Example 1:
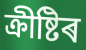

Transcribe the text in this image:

ক্ৰীষ্টিৰ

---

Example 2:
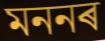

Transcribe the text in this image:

মননৰ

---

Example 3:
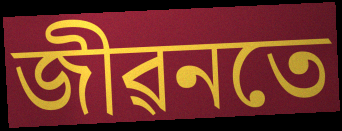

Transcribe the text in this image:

জীৱনতে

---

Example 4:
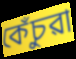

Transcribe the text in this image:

কেঁচুৱা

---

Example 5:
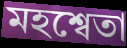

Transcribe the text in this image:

মহশ্বেতা